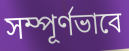
সম্পূর্ণভাবে